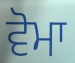
ਵੋਮਾ